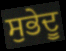
ਸੁਭੇਦੂ